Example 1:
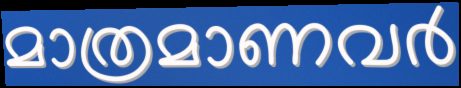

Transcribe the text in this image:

മാത്രമാണവർ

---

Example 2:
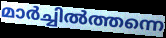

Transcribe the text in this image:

മാർച്ചിൽത്തന്നെ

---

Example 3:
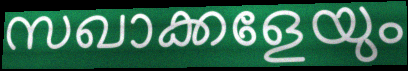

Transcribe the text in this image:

സഖാക്കളേയും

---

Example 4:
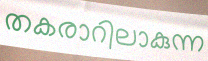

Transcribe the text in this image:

തകരാറിലാകുന്ന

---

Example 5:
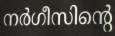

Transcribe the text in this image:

നർഗീസിന്റെ